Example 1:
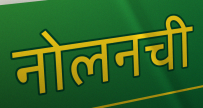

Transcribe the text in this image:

नोलनची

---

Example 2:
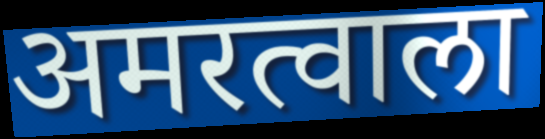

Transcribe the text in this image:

अमरत्वाला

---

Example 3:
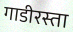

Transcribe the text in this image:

गाडीरस्ता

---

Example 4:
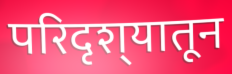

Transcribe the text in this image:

परिदृश्यातून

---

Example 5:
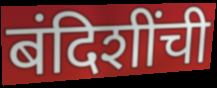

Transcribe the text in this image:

बंदिशींची